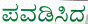
ಪವಡಿಸಿದ